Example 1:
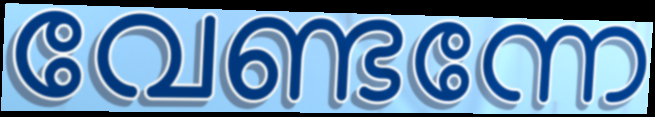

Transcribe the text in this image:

വേണ്ടന്നേ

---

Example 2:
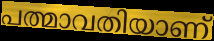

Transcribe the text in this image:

പത്മാവതിയാണ്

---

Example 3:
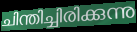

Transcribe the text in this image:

ചിന്തിച്ചിരിക്കുന്നു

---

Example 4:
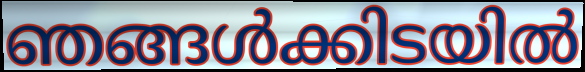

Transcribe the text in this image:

ഞങ്ങൾക്കിടയിൽ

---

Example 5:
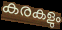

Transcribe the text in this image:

കരകളും